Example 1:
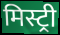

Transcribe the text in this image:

मिस्ट्री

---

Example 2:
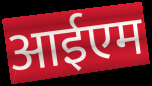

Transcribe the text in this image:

आईएम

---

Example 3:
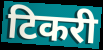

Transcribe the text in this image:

टिकरी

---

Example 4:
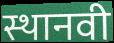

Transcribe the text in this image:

स्थानवी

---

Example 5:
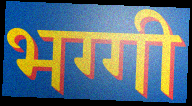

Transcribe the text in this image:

भग्गी